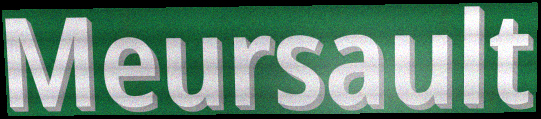
Meursault